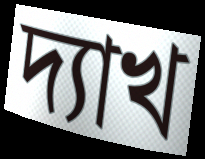
দ্যাখ